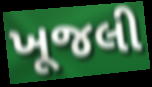
ખૂજલી